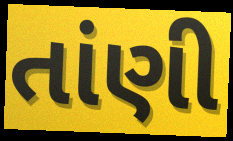
તાંણી